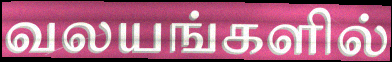
வலயங்களில்